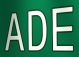
ADE